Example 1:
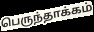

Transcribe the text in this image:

பெருந்தாக்கம்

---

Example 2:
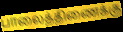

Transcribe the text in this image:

பாலைத்திணைக்கு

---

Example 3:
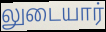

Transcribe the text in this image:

லுடையார்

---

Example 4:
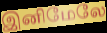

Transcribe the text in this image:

இனிமேலே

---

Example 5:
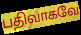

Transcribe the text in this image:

பதிவாகவே